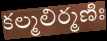
కల్మలిర్మణిః